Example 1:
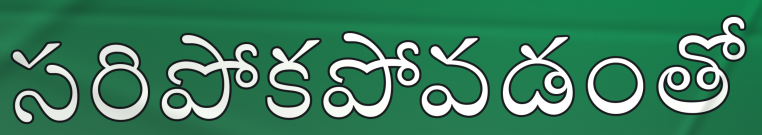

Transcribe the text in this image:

సరిపోకపోవడంతో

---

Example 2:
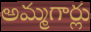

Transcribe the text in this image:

అమ్మగార్లు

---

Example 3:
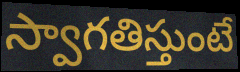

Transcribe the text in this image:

స్వాగతిస్తుంటే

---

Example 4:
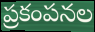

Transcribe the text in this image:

ప్రకంపనల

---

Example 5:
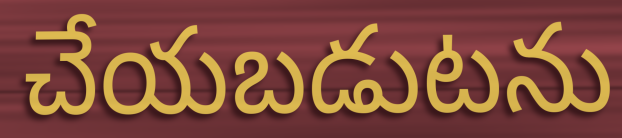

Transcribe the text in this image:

చేయబడుటను